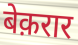
बेक़रार